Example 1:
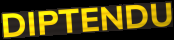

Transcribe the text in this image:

DIPTENDU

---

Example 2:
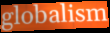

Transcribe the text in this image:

globalism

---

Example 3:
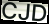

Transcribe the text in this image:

CJD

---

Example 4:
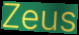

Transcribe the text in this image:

Zeus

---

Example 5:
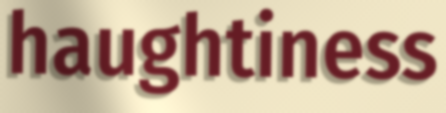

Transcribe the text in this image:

haughtiness